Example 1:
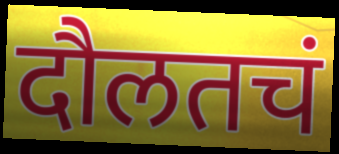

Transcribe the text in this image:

दौलतचं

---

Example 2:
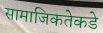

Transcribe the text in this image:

सामाजिकतेकडे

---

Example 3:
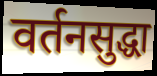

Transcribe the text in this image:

वर्तनसुद्धा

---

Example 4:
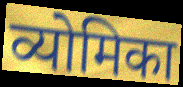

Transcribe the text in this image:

व्योमिका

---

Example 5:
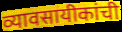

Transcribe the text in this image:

व्यावसायीकांची